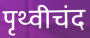
पृथ्वीचंद